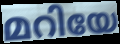
മറിയേ